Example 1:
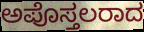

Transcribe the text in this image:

ಅಪೊಸ್ತಲರಾದ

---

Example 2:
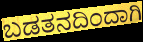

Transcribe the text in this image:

ಬಡತನದಿಂದಾಗಿ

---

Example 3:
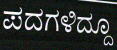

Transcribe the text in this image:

ಪದಗಳಿದ್ದೂ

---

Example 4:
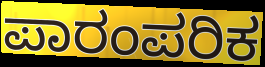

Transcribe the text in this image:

ಪಾರಂಪರಿಕ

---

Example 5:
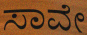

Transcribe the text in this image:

ಸಾವೇ